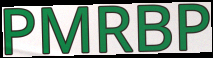
PMRBP